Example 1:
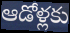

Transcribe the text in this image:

ఆడోళ్లకు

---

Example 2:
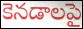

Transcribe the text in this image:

కెనడాలపై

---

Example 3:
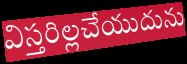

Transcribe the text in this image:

విస్తరిల్లచేయుదును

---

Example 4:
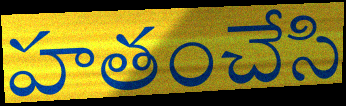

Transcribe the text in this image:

హతంచేసి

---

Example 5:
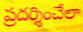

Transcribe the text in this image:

ప్రదర్శించేలా